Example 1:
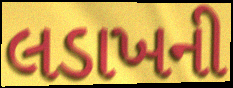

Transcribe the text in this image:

લડાખની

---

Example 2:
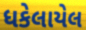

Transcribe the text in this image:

ધકેલાયેલ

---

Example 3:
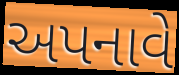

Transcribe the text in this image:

અપનાવે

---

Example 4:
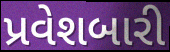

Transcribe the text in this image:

પ્રવેશબારી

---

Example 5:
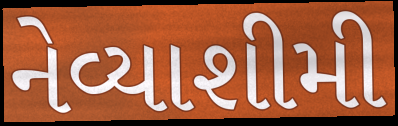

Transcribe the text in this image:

નેવ્યાશીમી